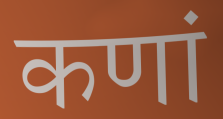
कणां